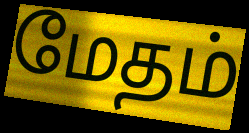
மேதம்